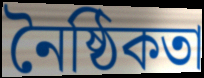
নৈষ্ঠিকতা